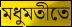
মধুমতীতে